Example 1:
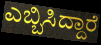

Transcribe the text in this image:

ಎಬ್ಬಿಸಿದ್ದಾರೆ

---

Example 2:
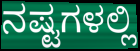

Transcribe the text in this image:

ನಷ್ಟಗಳಲ್ಲಿ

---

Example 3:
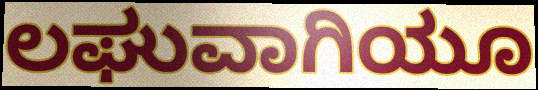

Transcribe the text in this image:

ಲಘುವಾಗಿಯೂ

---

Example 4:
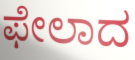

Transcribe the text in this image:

ಫೇಲಾದ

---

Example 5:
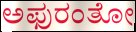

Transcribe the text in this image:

ಅಫುರಂತೋ